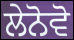
ਲੇਨੋਵੋ